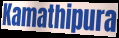
Kamathipura